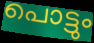
പൊട്ടും